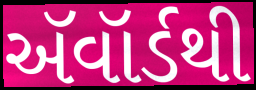
ઍવૉર્ડથી